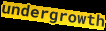
undergrowth